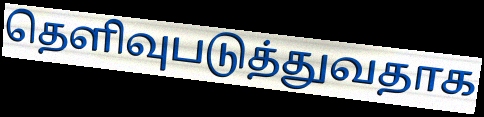
தெளிவுபடுத்துவதாக